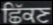
ਛਿੱਕਣ